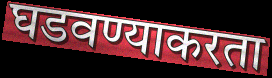
घडवण्याकरता